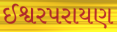
ઈશ્વરપરાયણ